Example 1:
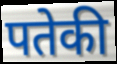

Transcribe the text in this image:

पतेकी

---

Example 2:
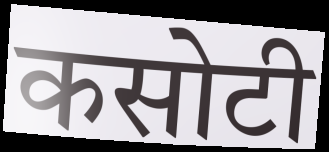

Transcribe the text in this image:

कसोटी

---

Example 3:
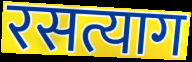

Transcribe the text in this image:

रसत्याग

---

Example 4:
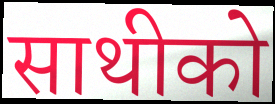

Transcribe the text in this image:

साथीको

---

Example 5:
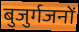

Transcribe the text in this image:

बुजुर्गजनों